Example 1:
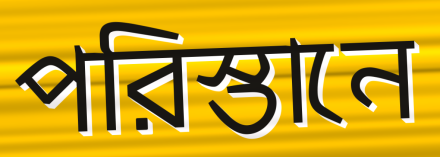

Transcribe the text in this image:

পরিস্তানে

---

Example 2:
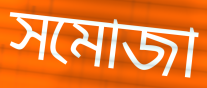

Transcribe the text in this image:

সমোজা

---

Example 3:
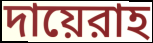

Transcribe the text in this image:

দায়েরাহ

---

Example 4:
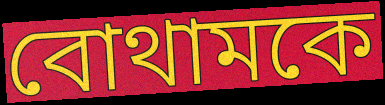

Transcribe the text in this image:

বোথামকে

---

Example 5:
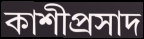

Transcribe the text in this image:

কাশীপ্রসাদ